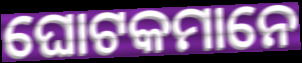
ଘୋଟକମାନେ